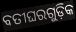
ବତୀଘରଗୁଡ଼ିକ